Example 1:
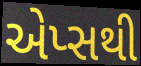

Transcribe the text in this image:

એપ્સથી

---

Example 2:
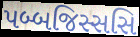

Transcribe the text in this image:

પબ્બજિસ્સસિ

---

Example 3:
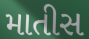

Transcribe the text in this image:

માતીસ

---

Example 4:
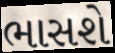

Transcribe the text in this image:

ભાસશે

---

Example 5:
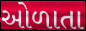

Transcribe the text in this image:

ઓળાતા